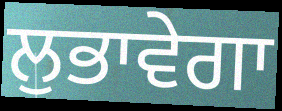
ਲੁਭਾਵੇਗਾ